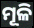
ମୂଳି